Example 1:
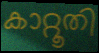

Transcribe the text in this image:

കാറ്റൂതി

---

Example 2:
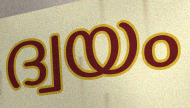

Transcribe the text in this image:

ദ്വയം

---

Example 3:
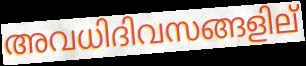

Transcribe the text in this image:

അവധിദിവസങ്ങളില്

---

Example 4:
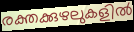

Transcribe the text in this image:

രക്തക്കുഴലുകളിൽ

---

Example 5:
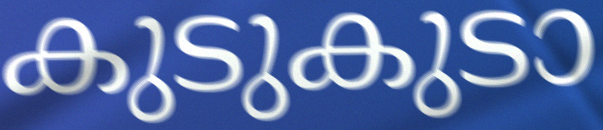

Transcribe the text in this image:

കുടുകുടാ